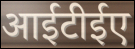
आईटीईए